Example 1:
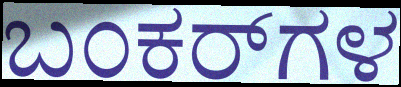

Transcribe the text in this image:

ಬಂಕರ್‌ಗಳ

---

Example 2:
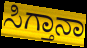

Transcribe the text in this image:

ಸಿಗ್ತಾನಾ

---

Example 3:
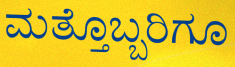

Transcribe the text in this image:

ಮತ್ತೊಬ್ಬರಿಗೂ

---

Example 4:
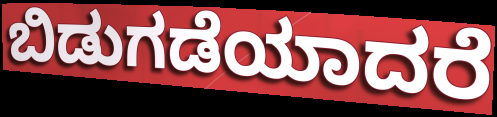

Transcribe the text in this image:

ಬಿಡುಗಡೆಯಾದರೆ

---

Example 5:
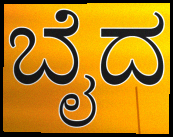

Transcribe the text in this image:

ಬೈದ